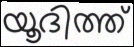
യൂദിത്ത്